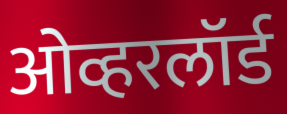
ओव्हरलॉर्ड